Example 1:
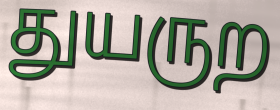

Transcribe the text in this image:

துயருற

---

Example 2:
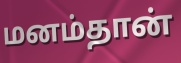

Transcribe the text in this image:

மனம்தான்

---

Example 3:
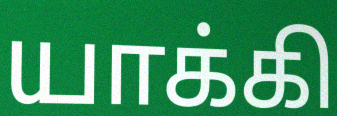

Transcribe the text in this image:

யாக்கி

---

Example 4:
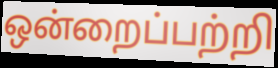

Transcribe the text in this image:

ஒன்றைப்பற்றி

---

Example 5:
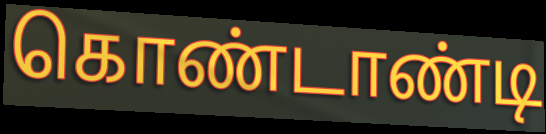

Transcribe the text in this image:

கொண்டாண்டி